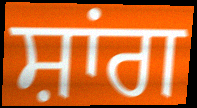
ਸ਼ਾਂਗ